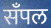
सँपल